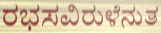
ರಭಸವಿರುಳೆನುತ